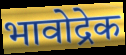
भावोद्रेक